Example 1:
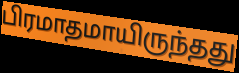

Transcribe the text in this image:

பிரமாதமாயிருந்தது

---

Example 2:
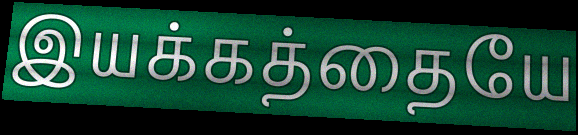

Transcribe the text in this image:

இயக்கத்தையே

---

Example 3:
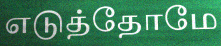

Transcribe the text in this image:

எடுத்தோமே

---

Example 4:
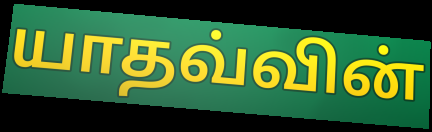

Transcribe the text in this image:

யாதவ்வின்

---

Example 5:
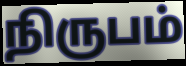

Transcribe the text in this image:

நிருபம்